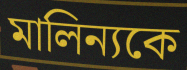
মালিন্যকে